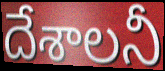
దేశాలనీ